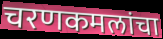
चरणकमलांचा